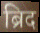
ब्रिद